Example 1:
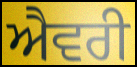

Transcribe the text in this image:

ਐਵਰੀ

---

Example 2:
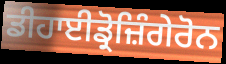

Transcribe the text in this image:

ਡੀਹਾਈਡ੍ਰੋਜ਼ਿੰਗੇਰੋਨ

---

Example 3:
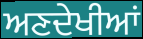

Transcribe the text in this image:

ਅਣਦੇਖੀਆਂ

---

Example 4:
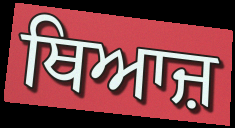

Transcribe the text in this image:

ਥਿਆਜ਼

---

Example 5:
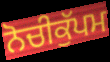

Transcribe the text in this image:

ਨੋਚੀਕੁੱਪਮ